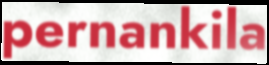
pernankila